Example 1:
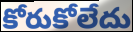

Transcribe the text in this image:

కోరుకోలేదు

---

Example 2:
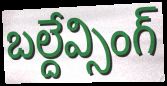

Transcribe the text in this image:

బల్దేవ్సింగ్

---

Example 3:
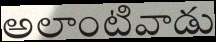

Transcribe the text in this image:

అలాంటివాడు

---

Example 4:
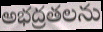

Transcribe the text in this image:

అభద్రతలను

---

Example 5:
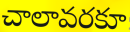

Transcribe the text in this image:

చాలావరకూ